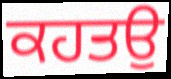
ਕਹਤਉ